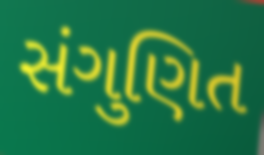
સંગુણિત